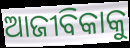
ଆଜୀବିକାକୁ